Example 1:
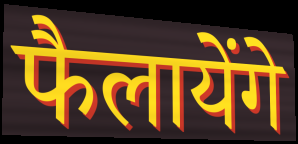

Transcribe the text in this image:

फैलायेंगे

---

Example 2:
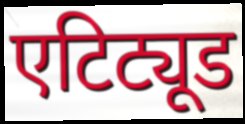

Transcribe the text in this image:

एटिट्यूड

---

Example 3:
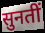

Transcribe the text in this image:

सुनतीं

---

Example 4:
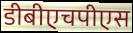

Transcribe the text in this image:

डीबीएचपीएस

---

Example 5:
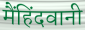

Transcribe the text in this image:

मैंहिंदवानी